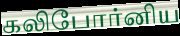
கலிபோர்னிய